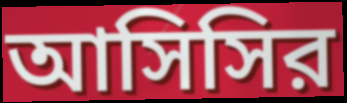
আসিসির